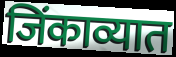
जिंकाव्यात